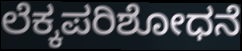
ಲೆಕ್ಕಪರಿಶೋಧನೆ